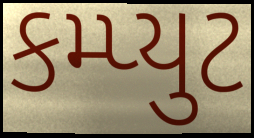
કમ્પ્યુટ